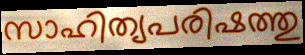
സാഹിത്യപരിഷത്തു